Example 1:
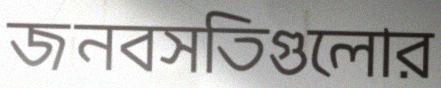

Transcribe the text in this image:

জনবসতিগুলোর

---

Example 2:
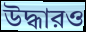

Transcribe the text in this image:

উদ্ধারও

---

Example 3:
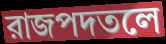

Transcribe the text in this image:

রাজপদতলে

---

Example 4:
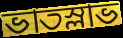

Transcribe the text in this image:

ভাতস্লাভ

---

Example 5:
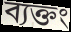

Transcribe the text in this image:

ব্যক্তং